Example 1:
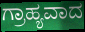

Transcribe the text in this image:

ಗ್ರಾಹ್ಯವಾದ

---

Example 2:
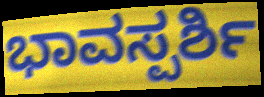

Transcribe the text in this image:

ಭಾವಸ್ಪರ್ಶಿ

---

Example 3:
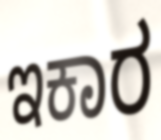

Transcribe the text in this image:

ಇಕಾರ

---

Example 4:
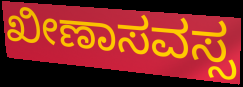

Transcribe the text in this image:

ಖೀಣಾಸವಸ್ಸ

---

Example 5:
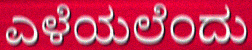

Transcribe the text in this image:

ಎಳೆಯಲೆಂದು